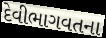
દેવીભાગવતના